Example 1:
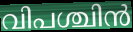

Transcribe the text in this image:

വിപശ്ചിൻ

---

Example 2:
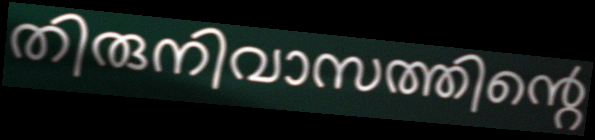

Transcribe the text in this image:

തിരുനിവാസത്തിന്റെ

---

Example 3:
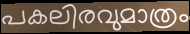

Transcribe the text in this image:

പകലിരവുമാത്രം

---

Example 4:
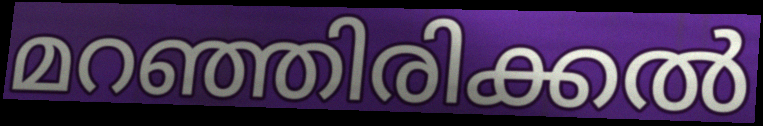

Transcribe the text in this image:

മറഞ്ഞിരിക്കൽ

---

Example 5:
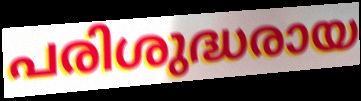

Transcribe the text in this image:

പരിശുദ്ധരായ